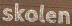
skolen